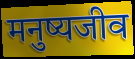
मनुष्यजीव